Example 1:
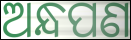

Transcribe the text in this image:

ଅନ୍ଧପଣ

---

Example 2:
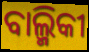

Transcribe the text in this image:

ବାଲ୍ମିକୀ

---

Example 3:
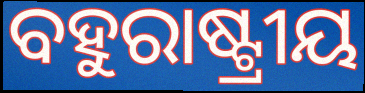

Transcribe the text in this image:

ବହୁରାଷ୍ଟ୍ରୀୟ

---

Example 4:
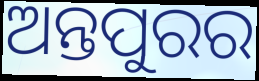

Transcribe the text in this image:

ଅନ୍ତପୁରର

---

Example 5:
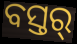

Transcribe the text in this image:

ବସ୍ତର୍